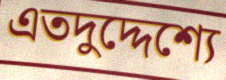
এতদুদ্দেশ্যে